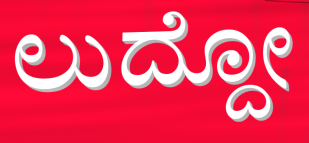
ಲುದ್ದೋ